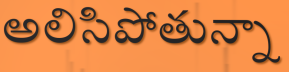
అలిసిపోతున్నా